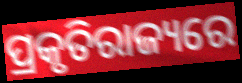
ପ୍ରକୃତିରାଜ୍ୟରେ